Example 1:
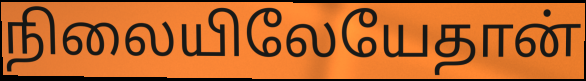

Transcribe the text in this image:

நிலையிலேயேதான்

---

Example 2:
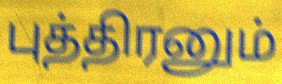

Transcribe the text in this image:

புத்திரனும்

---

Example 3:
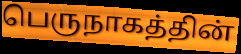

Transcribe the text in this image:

பெருநாகத்தின்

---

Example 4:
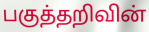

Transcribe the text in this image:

பகுத்தறிவின்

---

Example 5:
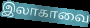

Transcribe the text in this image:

இலாகாவை